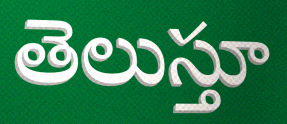
తెలుస్తూ